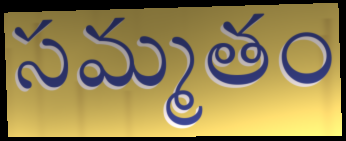
సమ్మతం